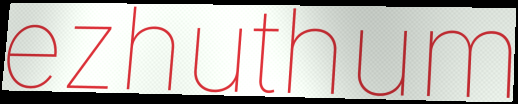
ezhuthum